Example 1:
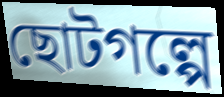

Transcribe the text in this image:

ছোটগল্পে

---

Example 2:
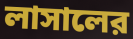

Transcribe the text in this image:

লাসালের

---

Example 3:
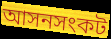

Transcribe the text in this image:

আসনসংকট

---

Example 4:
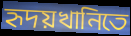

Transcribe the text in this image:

হৃদয়খানিতে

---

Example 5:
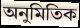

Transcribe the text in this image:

অনুমিতিক